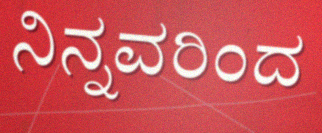
ನಿನ್ನವರಿಂದ